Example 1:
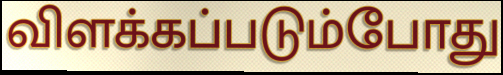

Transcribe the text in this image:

விளக்கப்படும்போது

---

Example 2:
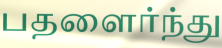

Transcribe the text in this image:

பதளைர்ந்து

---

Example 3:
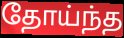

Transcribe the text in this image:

தோய்ந்த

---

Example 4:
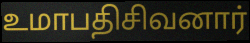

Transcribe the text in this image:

உமாபதிசிவனார்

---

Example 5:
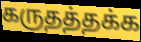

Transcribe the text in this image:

கருதத்தக்க